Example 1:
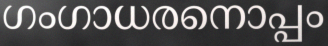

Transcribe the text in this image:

ഗംഗാധരനൊപ്പം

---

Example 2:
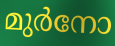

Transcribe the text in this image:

മുർനോ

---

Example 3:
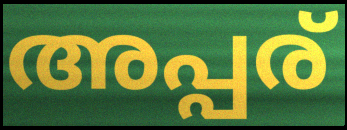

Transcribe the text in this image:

അപ്പര്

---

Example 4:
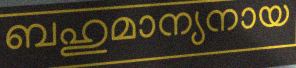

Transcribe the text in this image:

ബഹുമാന്യനായ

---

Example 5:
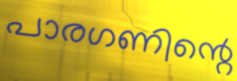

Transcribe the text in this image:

പാരഗണിന്റെ